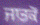
ਜਾਤਕੋਂ